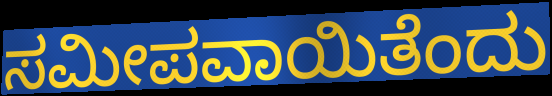
ಸಮೀಪವಾಯಿತೆಂದು